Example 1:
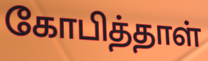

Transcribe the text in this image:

கோபித்தாள்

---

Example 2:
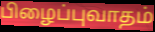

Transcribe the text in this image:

பிழைப்புவாதம்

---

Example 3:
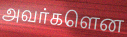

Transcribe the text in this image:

அவர்களென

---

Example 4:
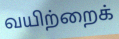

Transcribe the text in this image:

வயிற்றைக்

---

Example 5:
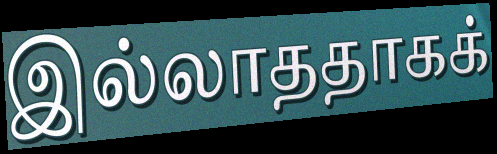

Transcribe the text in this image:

இல்லாததாகக்